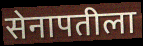
सेनापतीला